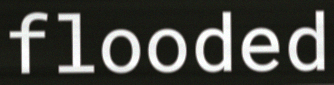
flooded